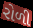
રોળી